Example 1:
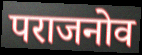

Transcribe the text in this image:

पराजनोव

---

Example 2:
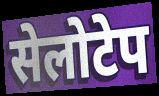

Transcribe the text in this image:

सेलोटेप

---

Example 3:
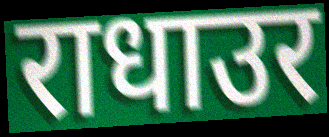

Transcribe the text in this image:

राधाउर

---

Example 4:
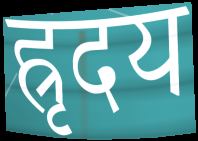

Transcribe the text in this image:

ह्रृदय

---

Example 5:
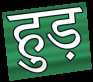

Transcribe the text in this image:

हुड़